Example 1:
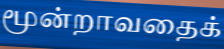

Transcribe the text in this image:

மூன்றாவதைக்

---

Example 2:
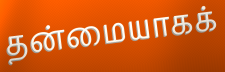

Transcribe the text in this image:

தன்மையாகக்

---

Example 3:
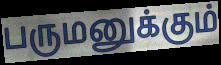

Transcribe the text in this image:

பருமனுக்கும்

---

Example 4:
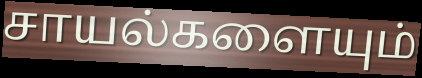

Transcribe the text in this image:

சாயல்களையும்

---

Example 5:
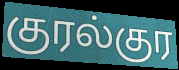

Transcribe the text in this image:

குரல்குர